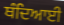
ਥੰਦਿਆਈ